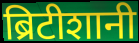
ब्रिटीशानी